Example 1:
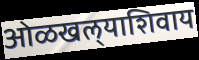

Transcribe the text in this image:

ओळखल्याशिवाय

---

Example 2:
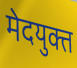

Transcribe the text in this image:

मेदयुक्त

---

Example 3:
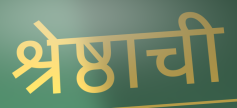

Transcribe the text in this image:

श्रेष्ठाची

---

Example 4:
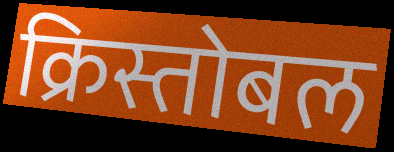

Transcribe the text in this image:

क्रिस्तोबल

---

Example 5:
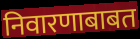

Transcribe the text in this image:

निवारणाबाबत